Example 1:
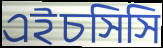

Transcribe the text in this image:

এইচসিসি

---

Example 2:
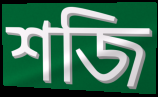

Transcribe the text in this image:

শজি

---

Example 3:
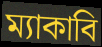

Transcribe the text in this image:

ম্যাকাবি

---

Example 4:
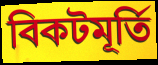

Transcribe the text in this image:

বিকটমূর্তি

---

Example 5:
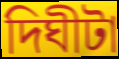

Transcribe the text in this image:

দিঘীটা